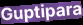
Guptipara